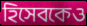
হিসেবকেও